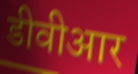
डीवीआर